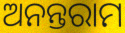
ଅନନ୍ତରାମ